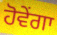
ਹੋਵੇਂਗਾ